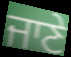
ਜਾਣੇ